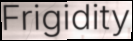
Frigidity